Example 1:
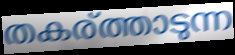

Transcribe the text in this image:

തകര്ത്താടുന്ന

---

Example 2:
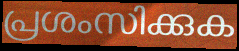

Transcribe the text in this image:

പ്രശംസിക്കുക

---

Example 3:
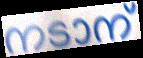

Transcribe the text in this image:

നടാന്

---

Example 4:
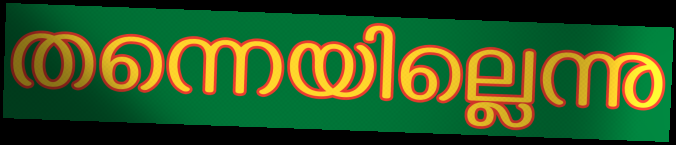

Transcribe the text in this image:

തന്നെയില്ലെന്നു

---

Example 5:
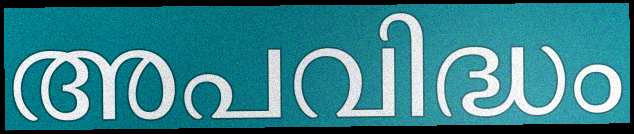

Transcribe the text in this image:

അപവിദ്ധം